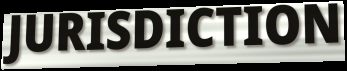
JURISDICTION